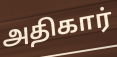
அதிகார்